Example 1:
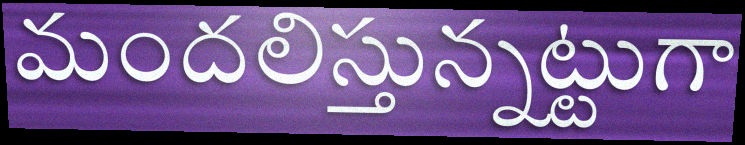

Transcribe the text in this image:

మందలిస్తున్నట్టుగా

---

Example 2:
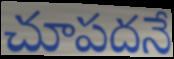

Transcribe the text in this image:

చూపదనే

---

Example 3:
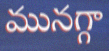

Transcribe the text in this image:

మునగ్గా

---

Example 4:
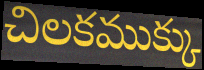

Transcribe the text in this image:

చిలకముక్కు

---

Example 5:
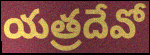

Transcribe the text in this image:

యత్రదేవో